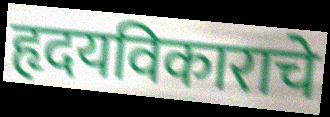
हृदयविकाराचे